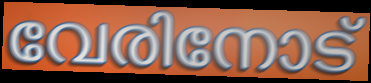
വേരിനോട്